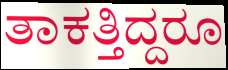
ತಾಕತ್ತಿದ್ದರೂ